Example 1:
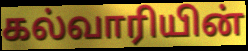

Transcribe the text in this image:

கல்வாரியின்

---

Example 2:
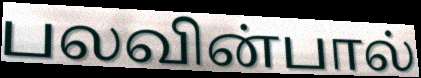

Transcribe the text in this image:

பலவின்பால்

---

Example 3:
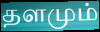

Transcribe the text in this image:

தளமும்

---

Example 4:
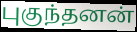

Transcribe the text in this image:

புகுந்தனன்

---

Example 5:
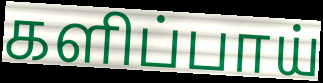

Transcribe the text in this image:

களிப்பாய்